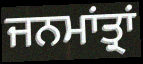
ਜਨਮਾਂਤ੍ਰਾਂ